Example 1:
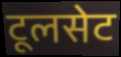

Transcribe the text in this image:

टूलसेट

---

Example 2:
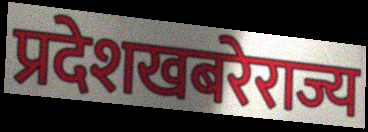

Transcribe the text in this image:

प्रदेशखबरेराज्य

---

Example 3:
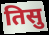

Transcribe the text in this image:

तिसु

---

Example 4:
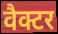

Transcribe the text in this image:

वैक्टर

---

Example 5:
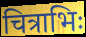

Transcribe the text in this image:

चित्राभिः